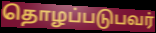
தொழப்படுபவர்